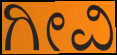
ಗೀವಿ